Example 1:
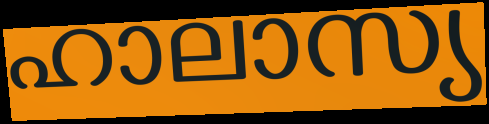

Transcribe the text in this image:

ഹാലാസ്യ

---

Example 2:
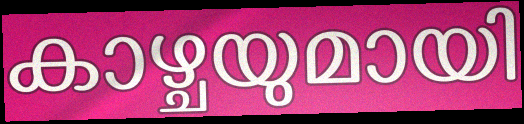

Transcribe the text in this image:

കാഴ്ചയുമായി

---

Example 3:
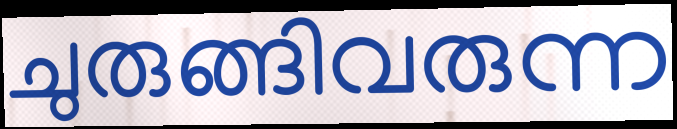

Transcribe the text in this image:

ചുരുങ്ങിവരുന്ന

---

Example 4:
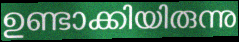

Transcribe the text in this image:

ഉണ്ടാക്കിയിരുന്നു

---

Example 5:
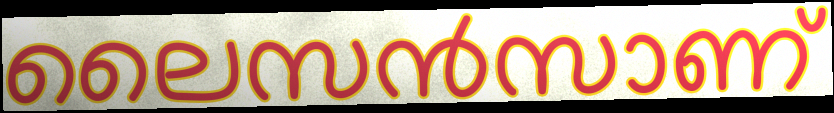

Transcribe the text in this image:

ലൈസൻസാണ്